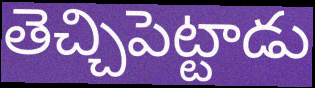
తెచ్చిపెట్టాడు